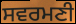
ਸਵਰਮਣੀ